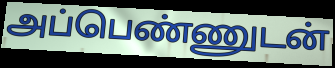
அப்பெண்ணுடன்